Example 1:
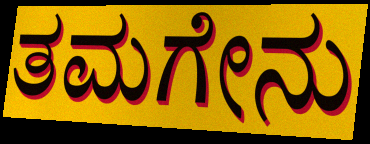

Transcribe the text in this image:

ತಮಗೇನು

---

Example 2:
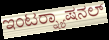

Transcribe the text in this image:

ಇಂಟರ್‍ನ್ಯಾಷನಲ್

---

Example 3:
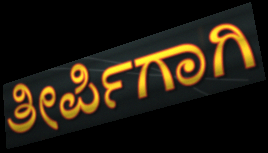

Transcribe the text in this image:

ತೀರ್ಪಿಗಾಗಿ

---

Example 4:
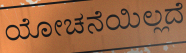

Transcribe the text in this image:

ಯೋಚನೆಯಿಲ್ಲದೆ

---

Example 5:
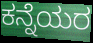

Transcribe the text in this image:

ಕನ್ನೆಯರ